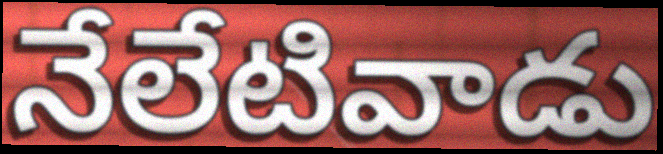
నేలేటివాడు